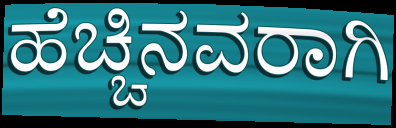
ಹೆಚ್ಚಿನವರಾಗಿ